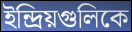
ইন্দ্রিয়গুলিকে